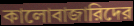
কালোবাজারিদের